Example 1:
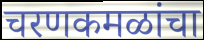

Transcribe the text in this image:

चरणकमळांचा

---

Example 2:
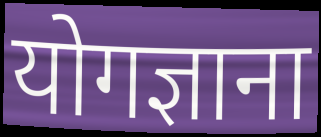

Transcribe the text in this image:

योगज्ञाना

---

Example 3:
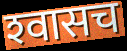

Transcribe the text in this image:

श्‍वासच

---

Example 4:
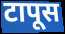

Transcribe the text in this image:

टापूस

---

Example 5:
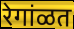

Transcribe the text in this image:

रेगांळत